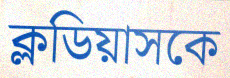
ক্লডিয়াসকে